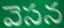
వెసన